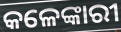
କଳେଙ୍କାରୀ